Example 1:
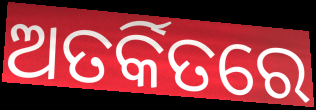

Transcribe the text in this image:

ଅତର୍କିତରେ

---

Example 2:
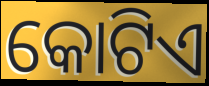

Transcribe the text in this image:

କୋଟିଏ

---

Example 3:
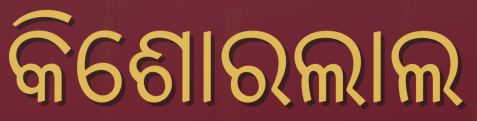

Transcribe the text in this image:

କିଶୋରଲାଲ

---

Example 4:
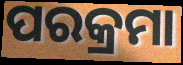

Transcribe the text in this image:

ପରକ୍ରମା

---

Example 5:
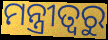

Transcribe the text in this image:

ମନ୍ତ୍ରୀତ୍ୱରୁ